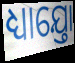
ଧ୍ୟାଯ୍ତୋ